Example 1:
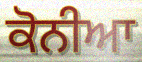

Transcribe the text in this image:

ਕੋਨੀਆ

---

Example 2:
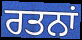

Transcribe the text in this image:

ਰਤਨਾਂ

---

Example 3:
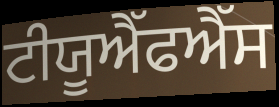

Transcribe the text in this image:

ਟੀਯੂਐੱਫਐੱਸ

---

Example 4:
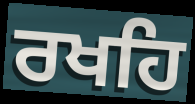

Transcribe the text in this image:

ਰਖਹਿ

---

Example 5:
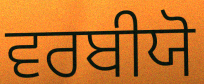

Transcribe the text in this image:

ਵਰਬੀਯੋ